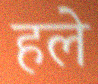
हले